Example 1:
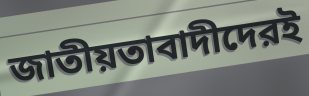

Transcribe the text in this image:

জাতীয়তাবাদীদেরই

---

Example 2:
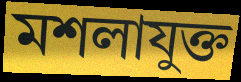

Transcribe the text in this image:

মশলাযুক্ত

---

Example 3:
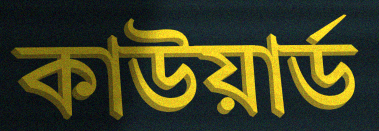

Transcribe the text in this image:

কাউয়ার্ড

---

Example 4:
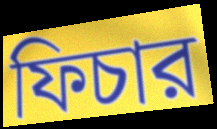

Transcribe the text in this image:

ফিচার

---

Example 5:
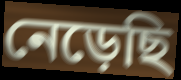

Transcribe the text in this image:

নেড়েছি